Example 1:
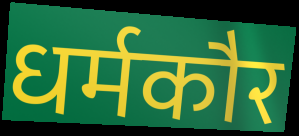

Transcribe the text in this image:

धर्मकौर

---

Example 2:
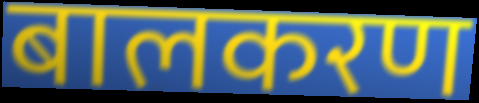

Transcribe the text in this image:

बालकरण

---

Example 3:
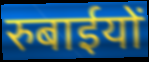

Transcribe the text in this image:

रुबाईयों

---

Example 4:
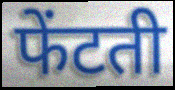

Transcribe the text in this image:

फेंटती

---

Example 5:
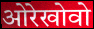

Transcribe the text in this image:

ओरेखोवो